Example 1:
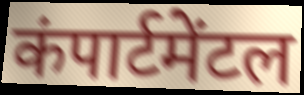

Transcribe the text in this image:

कंपार्टमेंटल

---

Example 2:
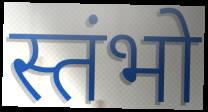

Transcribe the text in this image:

स्तंभो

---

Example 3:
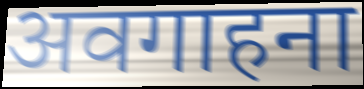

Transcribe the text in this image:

अवगाहना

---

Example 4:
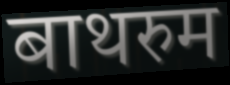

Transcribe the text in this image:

बाथरुम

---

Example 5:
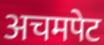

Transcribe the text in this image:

अचमपेट